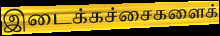
இடைக்கச்சைகளைக்